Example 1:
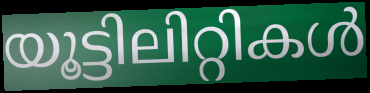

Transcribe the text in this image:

യൂട്ടിലിറ്റികൾ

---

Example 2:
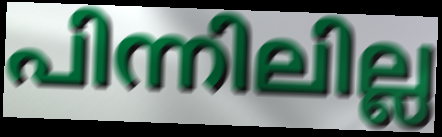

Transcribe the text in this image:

പിന്നിലില്ല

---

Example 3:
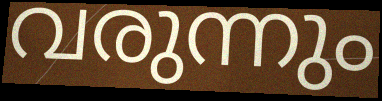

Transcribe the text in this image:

വരുന്നും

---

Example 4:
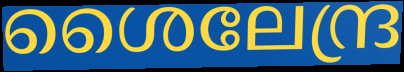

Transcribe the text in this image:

ശൈലേന്ദ്ര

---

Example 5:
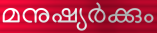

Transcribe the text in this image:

മനുഷ്യർക്കും